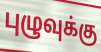
புழுவுக்கு